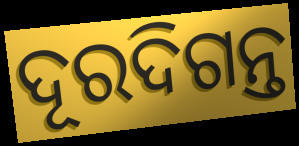
ଦୂରଦିଗନ୍ତ